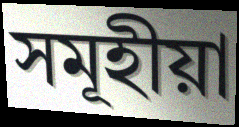
সমূহীয়া